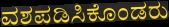
ವಶಪಡಿಸಿಕೊಂಡರು